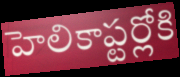
హెలికాప్టర్లోకి